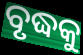
ବୃଦ୍ଧକୁ